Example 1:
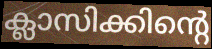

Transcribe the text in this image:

ക്ലാസിക്കിന്റെ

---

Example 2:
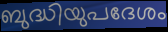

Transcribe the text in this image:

ബുദ്ധിയുപദേശം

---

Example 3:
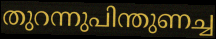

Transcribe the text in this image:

തുറന്നുപിന്തുണച്ച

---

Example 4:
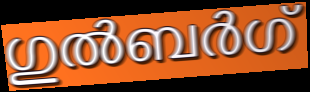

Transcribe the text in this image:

ഗുൽബർഗ്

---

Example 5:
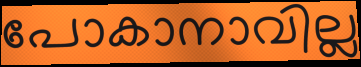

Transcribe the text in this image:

പോകാനാവില്ല